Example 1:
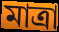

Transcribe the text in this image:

মাত্রা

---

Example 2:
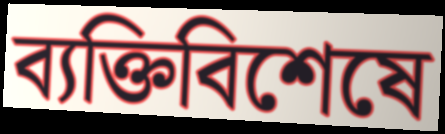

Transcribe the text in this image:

ব্যক্তিবিশেষে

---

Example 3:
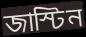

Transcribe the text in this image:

জাস্টিন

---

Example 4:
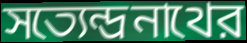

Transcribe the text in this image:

সত্যেন্দ্রনাথের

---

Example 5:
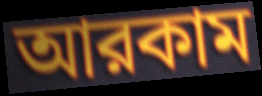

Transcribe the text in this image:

আরকাম